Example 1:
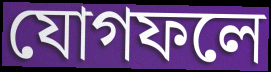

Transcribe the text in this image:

যোগফলে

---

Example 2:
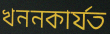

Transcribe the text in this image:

খননকাৰ্যত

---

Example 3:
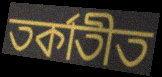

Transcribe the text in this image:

তৰ্কাতীত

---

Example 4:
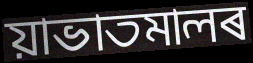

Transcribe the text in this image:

য়াভাতমালৰ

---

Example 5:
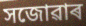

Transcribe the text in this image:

সজোৱাৰ